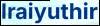
Iraiyuthir